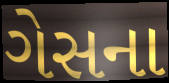
ગેસના